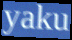
yaku